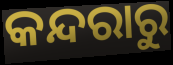
କନ୍ଦରାରୁ